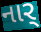
નાર્